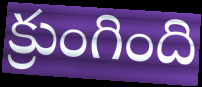
క్రుంగింది